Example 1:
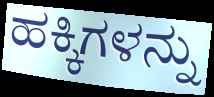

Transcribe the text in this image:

ಹಕ್ಕಿಗಳನ್ನು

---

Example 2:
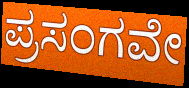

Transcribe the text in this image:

ಪ್ರಸಂಗವೇ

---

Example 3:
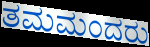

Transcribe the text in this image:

ತಮಮಂದರು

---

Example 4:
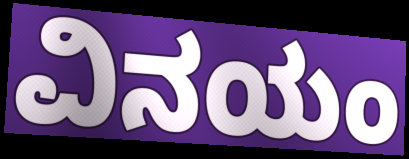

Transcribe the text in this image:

ವಿನಯಂ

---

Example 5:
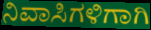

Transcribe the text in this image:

ನಿವಾಸಿಗಳಿಗಾಗಿ